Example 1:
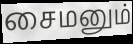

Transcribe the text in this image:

சைமனும்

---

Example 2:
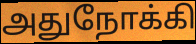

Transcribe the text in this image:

அதுநோக்கி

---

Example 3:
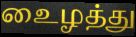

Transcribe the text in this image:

உைழத்து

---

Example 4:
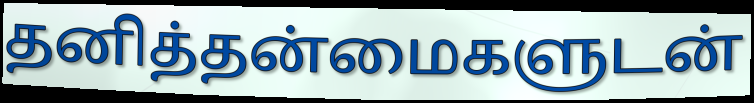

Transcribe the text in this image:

தனித்தன்மைகளுடன்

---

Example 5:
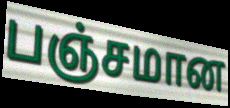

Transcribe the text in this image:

பஞ்சமான